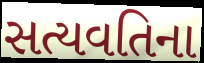
સત્યવતિના